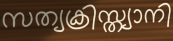
സത്യക്രിസ്ത്യാനി